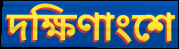
দক্ষিণাংশে